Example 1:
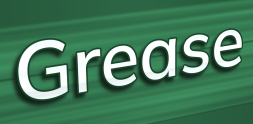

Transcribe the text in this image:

Grease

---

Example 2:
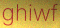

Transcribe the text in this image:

ghiwf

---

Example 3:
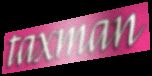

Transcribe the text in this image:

taxman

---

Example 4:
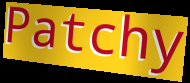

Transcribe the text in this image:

Patchy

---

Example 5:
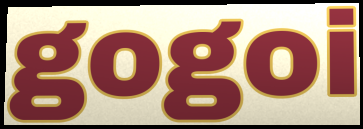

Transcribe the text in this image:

gogoi